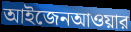
আইজেনআওয়ার